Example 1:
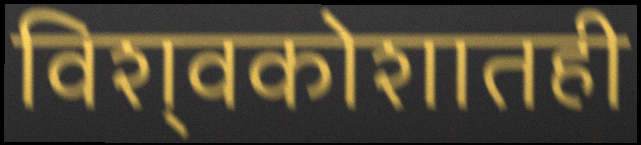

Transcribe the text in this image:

विश्वकोशातही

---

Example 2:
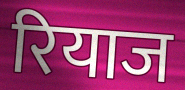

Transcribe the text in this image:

रियाज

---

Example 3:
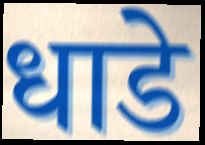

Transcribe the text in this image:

धाडे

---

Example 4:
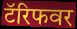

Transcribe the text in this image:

टॅरिफवर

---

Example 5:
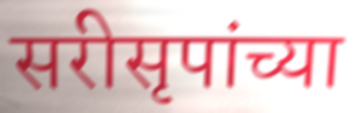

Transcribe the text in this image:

सरीसृपांच्या